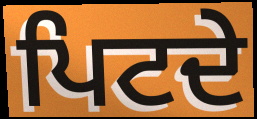
ਪਿਟਦੇ